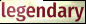
legendary